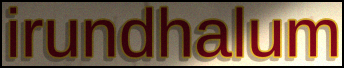
irundhalum